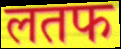
लतफ